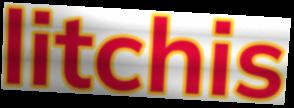
litchis